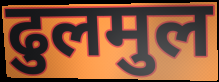
ढुलमुल